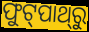
ଫୁଟ୍‌ପାଥ୍‌ରୁ